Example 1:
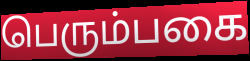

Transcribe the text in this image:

பெரும்பகை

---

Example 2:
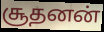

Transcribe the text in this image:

சூதனன்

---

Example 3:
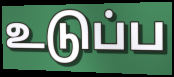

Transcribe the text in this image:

உடுப்ப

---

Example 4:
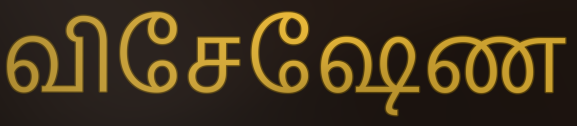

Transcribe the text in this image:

விசேஷேண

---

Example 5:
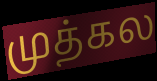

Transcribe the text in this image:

முத்கல